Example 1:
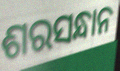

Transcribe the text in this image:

ଶରସନ୍ଧାନ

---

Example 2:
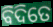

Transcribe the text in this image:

ବିଦିତେ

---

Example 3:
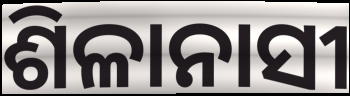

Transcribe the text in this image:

ଶିଳାନାସୀ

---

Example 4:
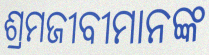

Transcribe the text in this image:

ଶ୍ରମଜୀବୀମାନଙ୍କ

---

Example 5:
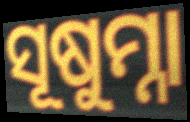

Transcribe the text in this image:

ସୂଷୁମ୍ନା